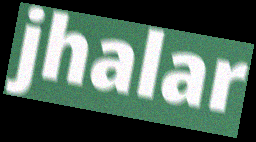
jhalar